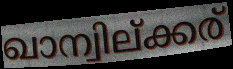
ഖാന്വില്ക്കര്